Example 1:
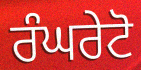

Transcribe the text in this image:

ਰੰਘਰੇਟੋ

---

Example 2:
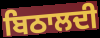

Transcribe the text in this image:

ਬਿਠਾਲਦੀ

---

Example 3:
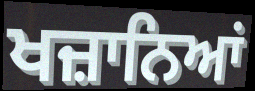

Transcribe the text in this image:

ਖਜ਼ਾਨਿਆਂ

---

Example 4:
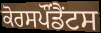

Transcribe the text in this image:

ਕੋਰਸਪੌਂਡੈਂਟਸ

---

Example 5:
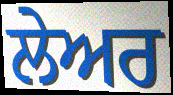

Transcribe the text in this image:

ਲੇਅਰ